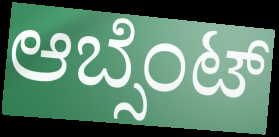
ಆಬ್ಸೆಂಟ್